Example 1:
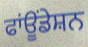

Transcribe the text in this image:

ਫਾਂਊਂਡੇਸ਼ਨ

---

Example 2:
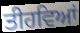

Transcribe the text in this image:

ਤੀਹਵਿਆਂ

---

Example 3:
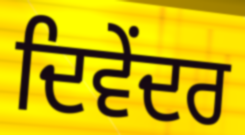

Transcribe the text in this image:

ਦਿਵੇਂਦਰ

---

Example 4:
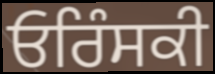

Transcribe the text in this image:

ਓਰਿੰਸਕੀ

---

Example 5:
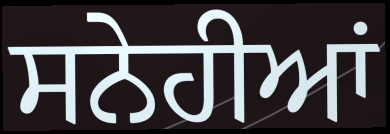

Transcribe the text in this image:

ਸਨੇਹੀਆਂ